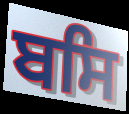
ਬਸਿ